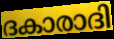
ദകാരാദി